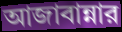
আজাবান্নার